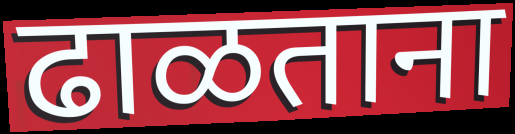
ढाळताना